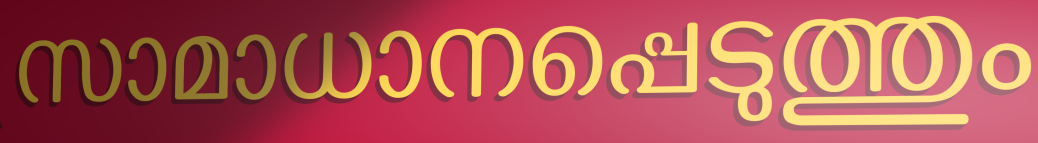
സാമാധാനപ്പെടുത്തും